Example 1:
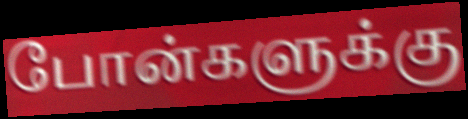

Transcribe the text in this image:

போன்களுக்கு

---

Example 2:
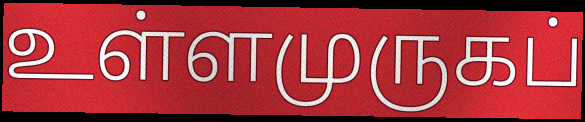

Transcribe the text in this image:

உள்ளமுருகப்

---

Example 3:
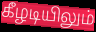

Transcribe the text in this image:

கீழடியிலும்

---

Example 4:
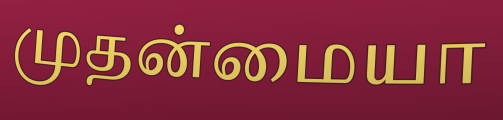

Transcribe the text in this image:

முதன்மையா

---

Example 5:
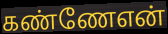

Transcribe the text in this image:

கண்ணேஎன்